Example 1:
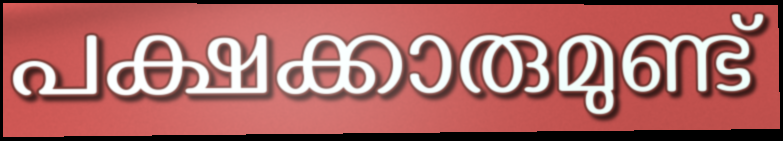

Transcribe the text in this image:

പക്ഷക്കാരുമുണ്ട്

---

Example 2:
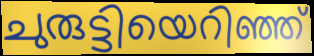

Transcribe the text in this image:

ചുരുട്ടിയെറിഞ്ഞ്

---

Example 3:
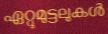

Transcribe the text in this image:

ഏറ്റുമുട്ടലുകൾ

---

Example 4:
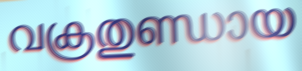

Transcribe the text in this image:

വക്രതുണ്ഡായ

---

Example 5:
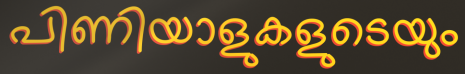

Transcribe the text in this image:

പിണിയാളുകളുടെയും